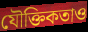
যৌক্তিকতাও